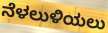
ನೆಳಲುಳಿಯಲು